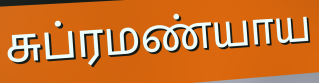
சுப்ரமண்யாய